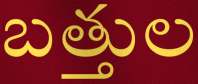
బత్తుల